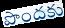
పొందకు